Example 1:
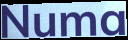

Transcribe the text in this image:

Numa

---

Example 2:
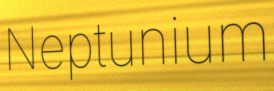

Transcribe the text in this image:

Neptunium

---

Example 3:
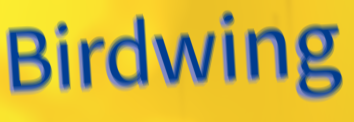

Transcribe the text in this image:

Birdwing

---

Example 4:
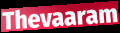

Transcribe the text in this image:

Thevaaram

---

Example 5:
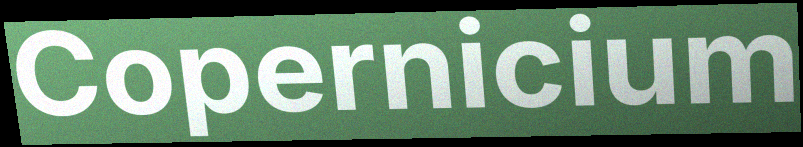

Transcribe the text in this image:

Copernicium